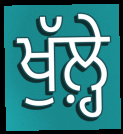
ਖੁੱਲ਼੍ਹੇ